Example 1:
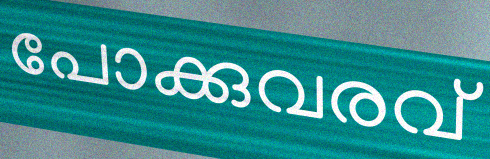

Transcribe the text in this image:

പോക്കുവരവ്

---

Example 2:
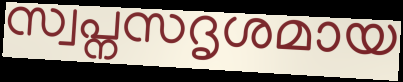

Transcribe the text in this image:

സ്വപ്നസദൃശമായ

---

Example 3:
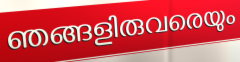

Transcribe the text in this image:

ഞങ്ങളിരുവരെയും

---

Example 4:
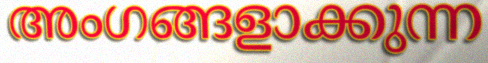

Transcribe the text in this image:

അംഗങ്ങളാക്കുന്ന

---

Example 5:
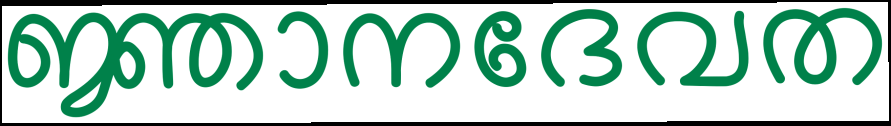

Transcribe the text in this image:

ജ്ഞാനദേവത